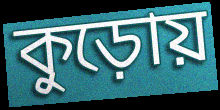
কুড়োয়